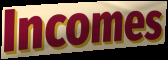
Incomes